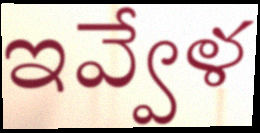
ఇవ్వేళ